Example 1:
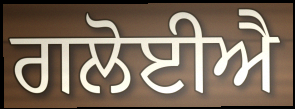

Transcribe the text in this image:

ਗਲੋਈਐ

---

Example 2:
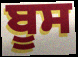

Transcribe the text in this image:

ਬੂਸ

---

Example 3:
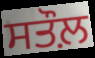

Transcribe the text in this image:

ਸਤੌਲ਼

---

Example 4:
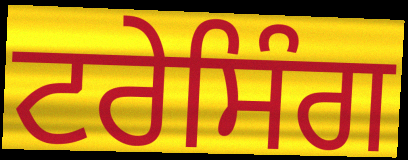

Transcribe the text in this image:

ਟਰੇਸਿੰਗ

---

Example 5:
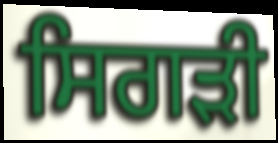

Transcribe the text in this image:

ਸਿਗੜੀ